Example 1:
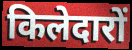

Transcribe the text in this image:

किलेदारों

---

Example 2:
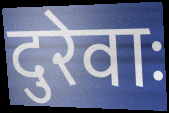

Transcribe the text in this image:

दुरेवाः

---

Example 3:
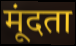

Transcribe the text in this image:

मूंदता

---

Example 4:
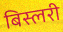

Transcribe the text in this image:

बिस्लरी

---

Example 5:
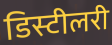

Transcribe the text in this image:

डिस्टीलरी